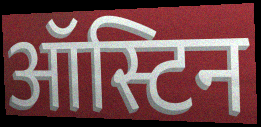
ऑस्टिन